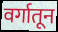
वर्गातून